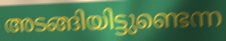
അടങ്ങിയിട്ടുണ്ടെന്ന